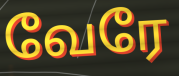
வேரே